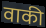
वाकी